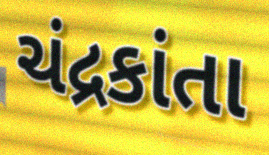
ચંદ્રકાંતા